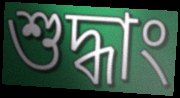
শুদ্ধাং